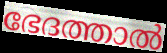
ഭേദത്താൽ